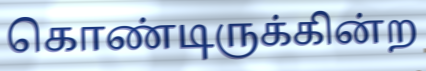
கொண்டிருக்கின்ற